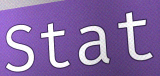
Stat